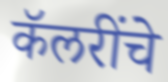
कॅलरींचे